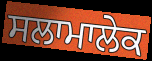
ਸਲਾਮਾਲੇਕ